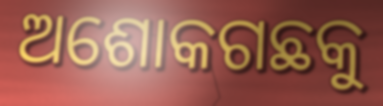
ଅଶୋକଗଛକୁ